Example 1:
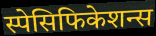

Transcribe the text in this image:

स्पेसिफिकेशन्स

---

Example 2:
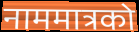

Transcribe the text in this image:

नाममात्रको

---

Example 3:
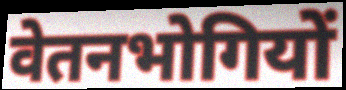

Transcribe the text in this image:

वेतनभोगियों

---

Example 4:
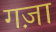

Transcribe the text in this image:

गज़ा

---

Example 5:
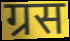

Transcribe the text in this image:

ग्रस